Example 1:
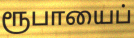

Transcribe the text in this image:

ரூபாயைப்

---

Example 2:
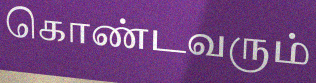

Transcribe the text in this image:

கொண்டவரும்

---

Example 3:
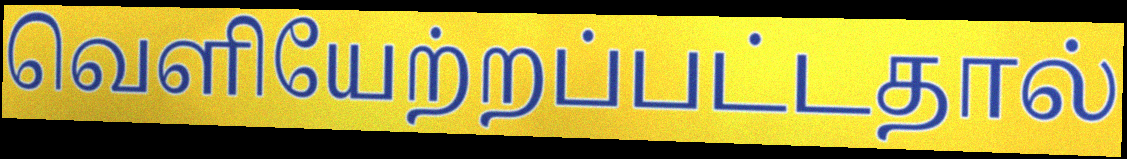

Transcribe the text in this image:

வெளியேற்றப்பட்டதால்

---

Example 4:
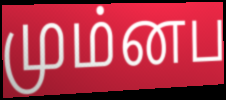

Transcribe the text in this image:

மும்னப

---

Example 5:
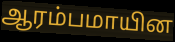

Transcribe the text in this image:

ஆரம்பமாயின